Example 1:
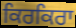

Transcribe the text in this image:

ਕਿਰਕਿਰਾ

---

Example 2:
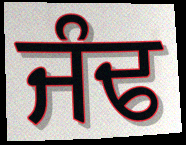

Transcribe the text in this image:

ਜੰਢ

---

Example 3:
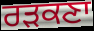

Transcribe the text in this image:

ਰੜਕਣਾ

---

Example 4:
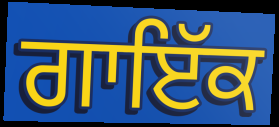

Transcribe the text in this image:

ਗਾਇੱਕ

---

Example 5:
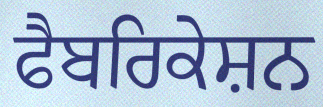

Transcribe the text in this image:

ਫੈਬਰਿਕੇਸ਼ਨ